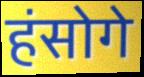
हंसोगे